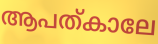
ആപത്കാലേ